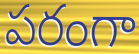
పరంగా